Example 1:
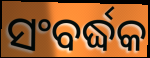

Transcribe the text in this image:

ସଂବର୍ଦ୍ଧକ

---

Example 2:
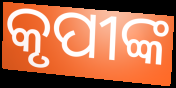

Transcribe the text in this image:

କୃପୀଙ୍କ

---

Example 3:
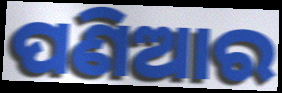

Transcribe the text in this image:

ପଣିଆର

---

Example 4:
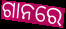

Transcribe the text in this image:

ଗାନରେ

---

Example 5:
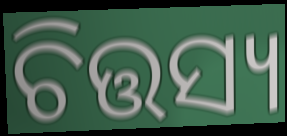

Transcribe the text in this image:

ଚିତ୍ତସ୍ୟ